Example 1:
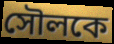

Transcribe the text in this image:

সৌলকে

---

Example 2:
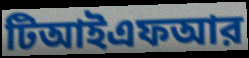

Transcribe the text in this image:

টিআইএফআর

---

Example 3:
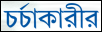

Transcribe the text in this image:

চর্চাকারীর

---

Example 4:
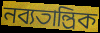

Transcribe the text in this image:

নব্যতান্ত্রিক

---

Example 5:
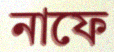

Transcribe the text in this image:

নাফে